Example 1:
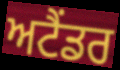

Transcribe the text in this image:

ਅਟੈਂਡਰ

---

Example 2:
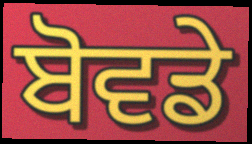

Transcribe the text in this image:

ਬੋਵਡੇ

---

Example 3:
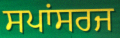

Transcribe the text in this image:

ਸਪਾਂਸਰਜ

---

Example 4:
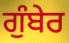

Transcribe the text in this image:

ਗੁੰਬੇਰ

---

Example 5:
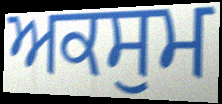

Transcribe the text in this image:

ਅਕਸੁਮ